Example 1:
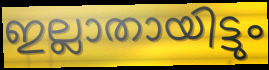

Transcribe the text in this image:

ഇല്ലാതായിട്ടും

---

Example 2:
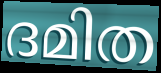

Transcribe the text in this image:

ദമിത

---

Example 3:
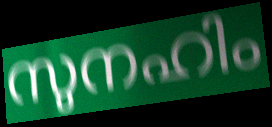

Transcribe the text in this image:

സുനഹിം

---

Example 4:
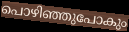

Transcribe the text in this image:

പൊഴിഞ്ഞുപോകും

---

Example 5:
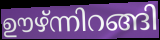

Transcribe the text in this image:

ഊഴ്ന്നിറങ്ങി